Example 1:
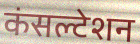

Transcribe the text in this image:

कंसल्टेशन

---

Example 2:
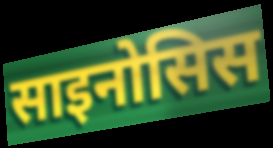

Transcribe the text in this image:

साइनोसिस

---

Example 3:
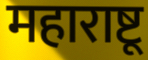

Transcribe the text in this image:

महाराष्टू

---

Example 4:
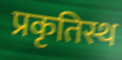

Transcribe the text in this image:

प्रकृतिस्थ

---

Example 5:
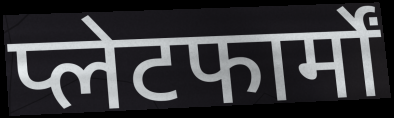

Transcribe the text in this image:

प्लेटफार्मों